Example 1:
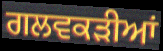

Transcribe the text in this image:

ਗਲਵਕੜੀਆਂ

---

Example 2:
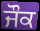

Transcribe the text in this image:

ਜੌਕ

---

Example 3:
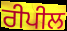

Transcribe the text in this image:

ਰੀਪੀਲ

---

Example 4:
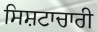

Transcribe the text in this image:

ਸਿਸ਼ਟਾਚਾਰੀ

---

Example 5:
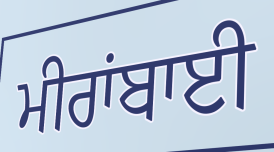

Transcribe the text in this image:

ਮੀਰਾਂਬਾਈ